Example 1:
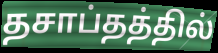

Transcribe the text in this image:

தசாப்தத்தில்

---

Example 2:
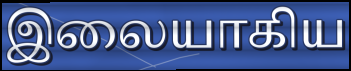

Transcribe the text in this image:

இலையாகிய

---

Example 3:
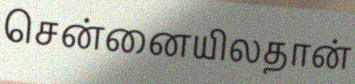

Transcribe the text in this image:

சென்னையிலதான்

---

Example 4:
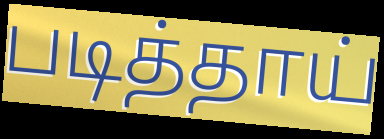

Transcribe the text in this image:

படித்தாய்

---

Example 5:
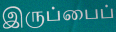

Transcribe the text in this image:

இருப்பைப்